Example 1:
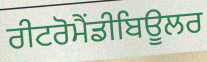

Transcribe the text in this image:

ਰੀਟਰੋਮੈਂਡੀਬਿਊਲਰ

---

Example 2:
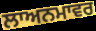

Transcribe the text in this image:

ਲਾਅਨਮਾਵਰ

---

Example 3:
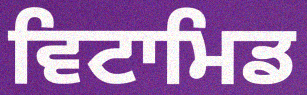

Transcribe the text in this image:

ਵਿਟਾਮਿਡ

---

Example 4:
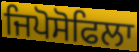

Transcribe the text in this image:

ਜਿਪੋਸੋਫਿਲਾ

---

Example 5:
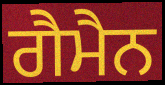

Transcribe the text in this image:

ਗੈਮੈਨ